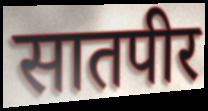
सातपीर